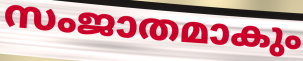
സംജാതമാകും